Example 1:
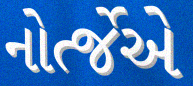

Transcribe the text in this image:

નોર્ત્જેએ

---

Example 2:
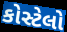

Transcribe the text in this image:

કોસ્ટેલો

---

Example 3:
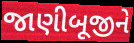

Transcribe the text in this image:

જાણીબૂજીને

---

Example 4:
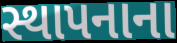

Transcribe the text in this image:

સ્થાપનાના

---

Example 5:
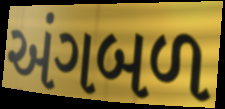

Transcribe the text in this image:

અંગબળ